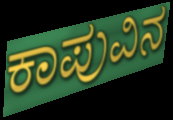
ಕಾಪುವಿನ